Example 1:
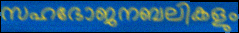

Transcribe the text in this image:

സഹഭോജനബലികളും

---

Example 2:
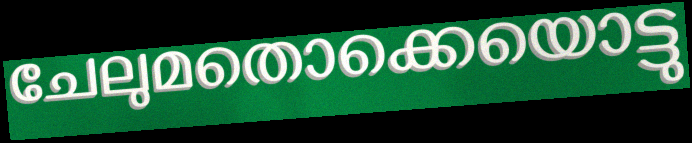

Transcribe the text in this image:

ചേലുമതൊക്കെയൊട്ടു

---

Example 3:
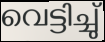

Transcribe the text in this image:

വെട്ടിച്ചു്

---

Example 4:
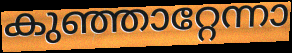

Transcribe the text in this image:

കുഞ്ഞാറ്റേന്നാ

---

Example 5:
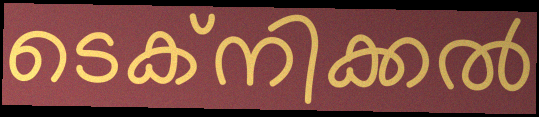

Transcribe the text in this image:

ടെക്നിക്കൽ